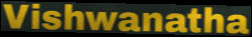
Vishwanatha